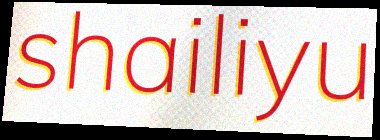
shailiyu